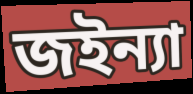
জইন্যা